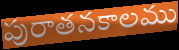
పురాతనకాలము